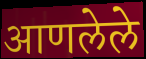
आणलेले